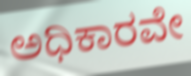
ಅಧಿಕಾರವೇ